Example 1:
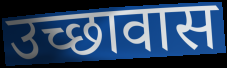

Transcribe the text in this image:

उच्छावास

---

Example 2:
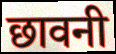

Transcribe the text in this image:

छावनी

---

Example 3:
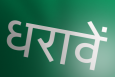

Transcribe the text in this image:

धरावें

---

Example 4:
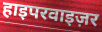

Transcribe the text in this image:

हाइपरवाइज़र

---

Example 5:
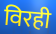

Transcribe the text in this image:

विरही